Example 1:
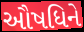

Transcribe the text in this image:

ઔષધિને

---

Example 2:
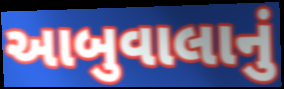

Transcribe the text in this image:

આબુવાલાનું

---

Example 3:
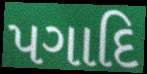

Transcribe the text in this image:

પગાદિ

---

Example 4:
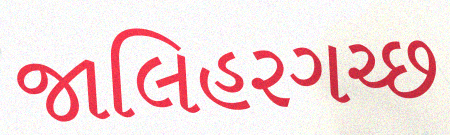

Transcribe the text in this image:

જાલિહરગચ્છ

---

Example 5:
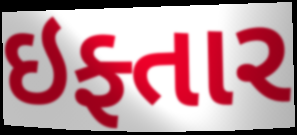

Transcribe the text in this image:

ઇફ્તાર